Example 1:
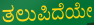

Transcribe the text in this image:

ತಲುಪಿದೆಯೇ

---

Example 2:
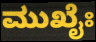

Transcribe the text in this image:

ಮುಖೈಃ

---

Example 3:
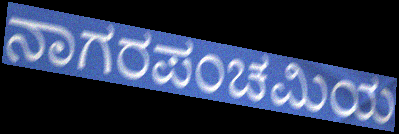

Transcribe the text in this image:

ನಾಗರಪಂಚಮಿಯ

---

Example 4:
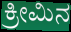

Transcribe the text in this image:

ಕ್ರೀಮಿನ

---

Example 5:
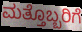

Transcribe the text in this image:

ಮತ್ತೊಬ್ಬರಿಗೆ